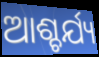
ଆଶ୍ଚର୍ଯ୍ୟ